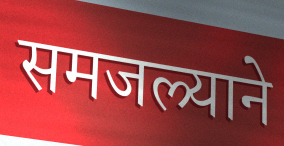
समजल्याने